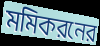
মমিকরনের